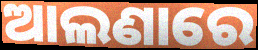
ଆଲଣାରେ